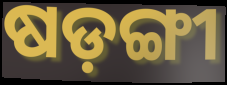
ଷଡ଼ଙ୍ଗୀ